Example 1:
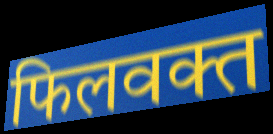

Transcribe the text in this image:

फिलवक्‍त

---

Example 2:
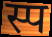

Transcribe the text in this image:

स्प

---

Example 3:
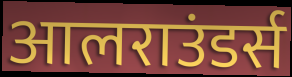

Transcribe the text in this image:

आलराउंडर्स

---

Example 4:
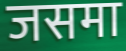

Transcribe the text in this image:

जसमा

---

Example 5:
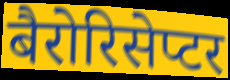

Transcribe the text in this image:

बैरोरिसेप्टर